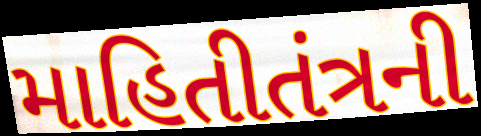
માહિતીતંત્રની